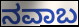
ನವಾಬ